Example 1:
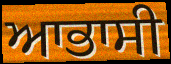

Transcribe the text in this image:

ਆਭਾਸੀ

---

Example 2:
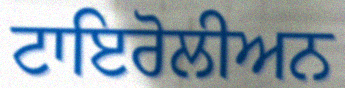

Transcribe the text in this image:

ਟਾਇਰੋਲੀਅਨ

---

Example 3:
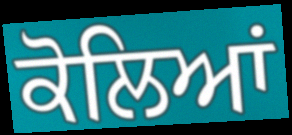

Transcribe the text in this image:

ਕੋਲਿਆਂ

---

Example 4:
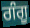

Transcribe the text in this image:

ਗੰਗੂ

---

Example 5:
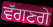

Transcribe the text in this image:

ਵੱਗਣਗੇ